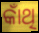
କାଁଥି